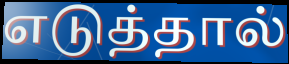
எடுத்தால்